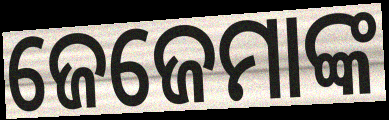
ଜେଜେମାଙ୍କ